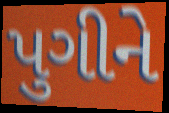
પુગીને